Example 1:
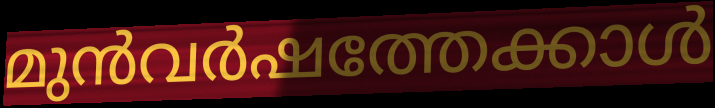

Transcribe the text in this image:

മുൻവർഷത്തേക്കാൾ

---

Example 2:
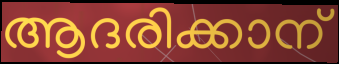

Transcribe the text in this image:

ആദരിക്കാന്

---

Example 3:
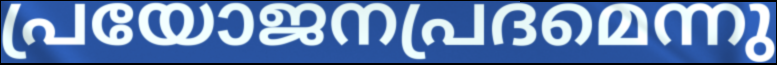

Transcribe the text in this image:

പ്രയോജനപ്രദമെന്നു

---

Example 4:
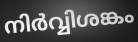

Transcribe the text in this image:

നിർവ്വിശങ്കം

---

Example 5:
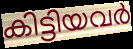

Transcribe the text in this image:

കിട്ടിയവർ